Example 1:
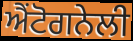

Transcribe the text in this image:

ਐਂਟੋਗਨੇਲੀ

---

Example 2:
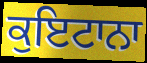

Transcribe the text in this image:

ਕੁਇਟਾਨਾ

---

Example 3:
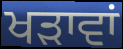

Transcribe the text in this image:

ਖੜਾਵਾਂ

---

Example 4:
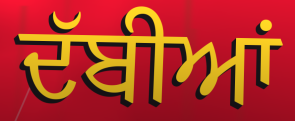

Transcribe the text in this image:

ਦੱਬੀਆਂ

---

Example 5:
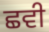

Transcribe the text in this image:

ਛਵੀ